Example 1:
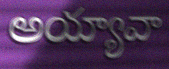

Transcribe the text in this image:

అయ్యావా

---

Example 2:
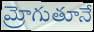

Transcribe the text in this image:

మ్రోగుతూనే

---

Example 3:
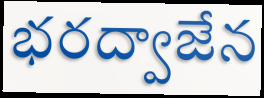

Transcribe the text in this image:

భరద్వాజేన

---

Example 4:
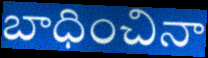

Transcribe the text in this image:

బాధించినా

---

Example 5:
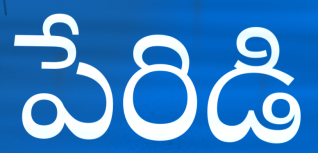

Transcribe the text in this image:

పేరిడి